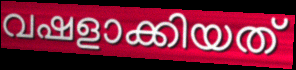
വഷളാക്കിയത്